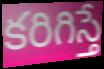
కరిగిస్తే